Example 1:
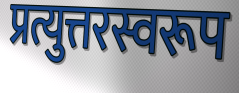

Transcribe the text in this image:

प्रत्युत्तरस्वरूप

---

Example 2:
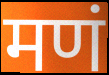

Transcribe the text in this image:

मणं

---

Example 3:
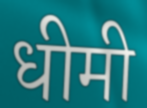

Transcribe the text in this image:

धीमी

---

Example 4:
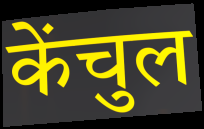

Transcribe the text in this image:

केंचुल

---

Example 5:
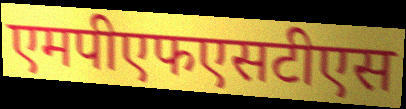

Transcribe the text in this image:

एमपीएफएसटीएस